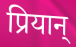
प्रियान्